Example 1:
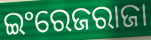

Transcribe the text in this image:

ଇଂରେଜରାଜା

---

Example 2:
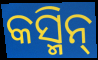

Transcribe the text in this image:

କସ୍ମିନ୍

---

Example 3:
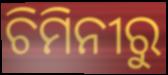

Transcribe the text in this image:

ଚିମିନୀରୁ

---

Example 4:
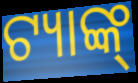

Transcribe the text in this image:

ଟ୍ୟାଙ୍କ୍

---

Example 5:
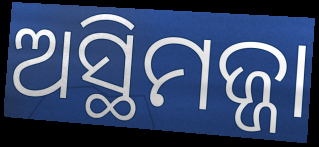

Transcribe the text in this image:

ଅସ୍ଥିମଜ୍ଜା